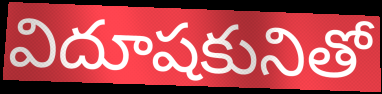
విదూషకునితో